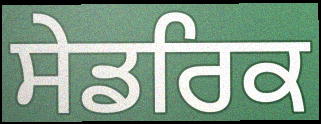
ਸੇਡਰਿਕ